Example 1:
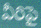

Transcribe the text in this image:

వీరిపై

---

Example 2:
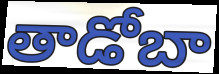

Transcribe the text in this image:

తాడోబా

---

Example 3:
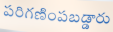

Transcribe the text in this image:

పరిగణింపబడ్డారు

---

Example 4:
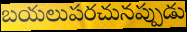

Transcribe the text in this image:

బయలుపరచునప్పుడు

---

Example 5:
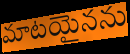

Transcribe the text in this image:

మాటయైనను